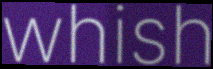
whish